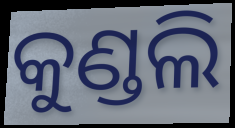
କୁଣ୍ଡଲି